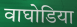
वाघोडिया